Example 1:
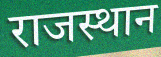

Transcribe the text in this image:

राजस्‍थान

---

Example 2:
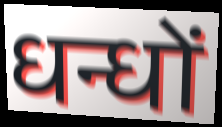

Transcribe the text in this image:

धन्धों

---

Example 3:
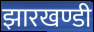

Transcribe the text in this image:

झारखण्डी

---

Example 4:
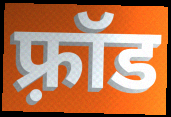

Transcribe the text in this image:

फ़्रॉड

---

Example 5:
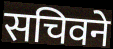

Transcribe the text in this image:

सचिवने